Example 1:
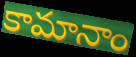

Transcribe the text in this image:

కామానాం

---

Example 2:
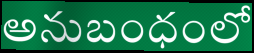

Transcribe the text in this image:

అనుబంధంలో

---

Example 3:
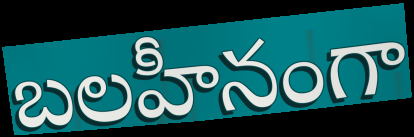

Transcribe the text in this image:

బలహీనంగా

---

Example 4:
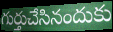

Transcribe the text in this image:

గుర్తుచేసినందుకు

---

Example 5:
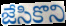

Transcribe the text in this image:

జేసికొని